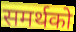
समर्थको